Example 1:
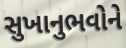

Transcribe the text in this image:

સુખાનુભવોને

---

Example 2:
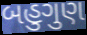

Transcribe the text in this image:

બહુગુણ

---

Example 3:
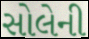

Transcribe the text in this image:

સોલેની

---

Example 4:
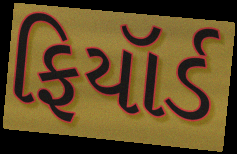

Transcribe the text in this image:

ફિયૉર્ડ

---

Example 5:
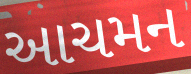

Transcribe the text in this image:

આચમન